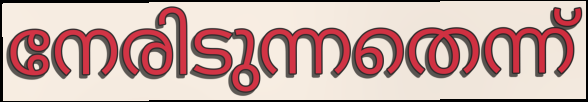
നേരിടുന്നതെന്ന്